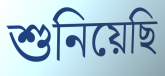
শুনিয়েছি